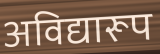
अविद्यारूप